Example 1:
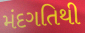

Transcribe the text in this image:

મંદગતિથી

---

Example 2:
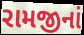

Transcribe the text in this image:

રામજીનાં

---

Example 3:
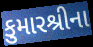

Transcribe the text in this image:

કુમારશ્રીના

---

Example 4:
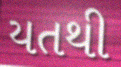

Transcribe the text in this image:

યતથી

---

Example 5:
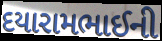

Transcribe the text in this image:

દયારામભાઈની